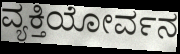
ವ್ಯಕ್ತಿಯೋರ್ವನ